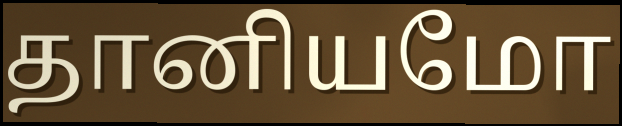
தானியமோ